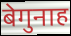
बेगुनाह